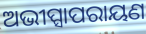
ଅଭୀପ୍ସାପରାୟଣ